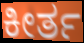
ಕೀರ್ತ